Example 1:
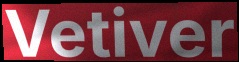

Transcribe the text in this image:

Vetiver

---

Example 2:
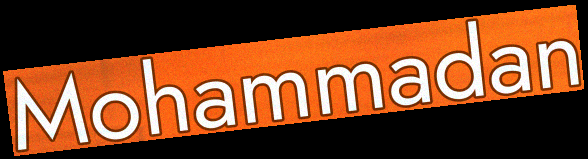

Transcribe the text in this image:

Mohammadan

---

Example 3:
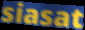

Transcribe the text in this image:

siasat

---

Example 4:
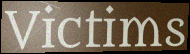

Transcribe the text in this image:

Victims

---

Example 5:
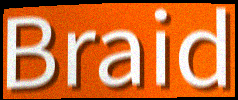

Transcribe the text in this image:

Braid